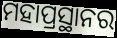
ମହାପ୍ରସ୍ଥାନର